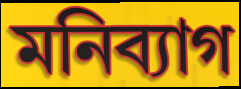
মনিব্যাগ